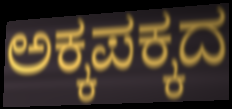
ಅಕ್ಕಪಕ್ಕದ